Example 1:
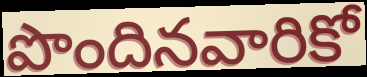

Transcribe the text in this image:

పొందినవారికో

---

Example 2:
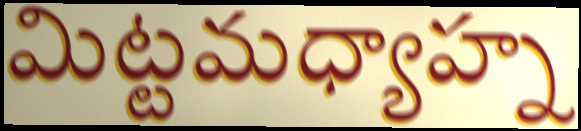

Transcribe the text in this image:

మిట్టమధ్యాహ్న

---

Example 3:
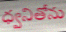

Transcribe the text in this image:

ధ్వనితోను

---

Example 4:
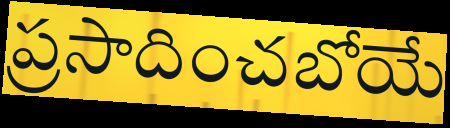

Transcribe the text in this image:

ప్రసాదించబోయే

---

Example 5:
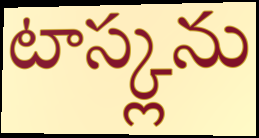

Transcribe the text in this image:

టాస్క్లను